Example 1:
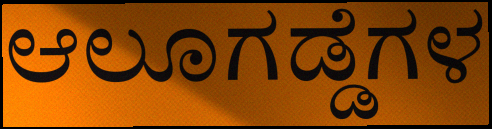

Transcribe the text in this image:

ಆಲೂಗಡ್ಡೆಗಳ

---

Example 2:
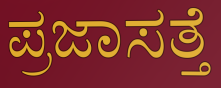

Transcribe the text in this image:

ಪ್ರಜಾಸತ್ತೆ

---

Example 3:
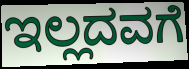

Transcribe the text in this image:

ಇಲ್ಲದವಗೆ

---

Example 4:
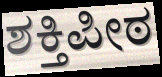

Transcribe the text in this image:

ಶಕ್ತಿಪೀಠ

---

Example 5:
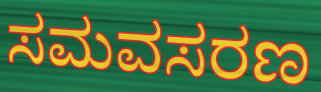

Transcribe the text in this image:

ಸಮವಸರಣ